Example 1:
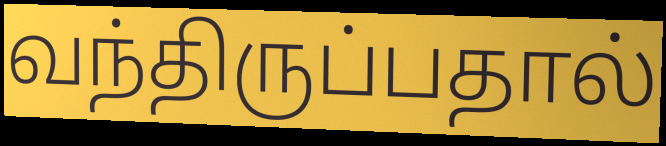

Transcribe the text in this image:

வந்திருப்பதால்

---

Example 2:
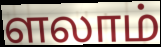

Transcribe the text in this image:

ளலாம்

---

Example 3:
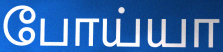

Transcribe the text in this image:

போய்யா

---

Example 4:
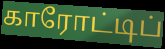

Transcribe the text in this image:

காரோட்டிப்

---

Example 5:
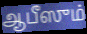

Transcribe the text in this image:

ஆபீஸும்